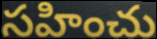
సహించు